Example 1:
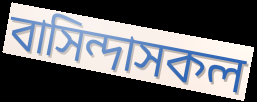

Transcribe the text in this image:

বাসিন্দাসকল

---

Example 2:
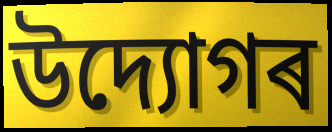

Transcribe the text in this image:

উদ্যোগৰ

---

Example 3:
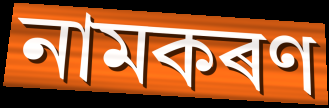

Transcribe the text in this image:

নামকৰণ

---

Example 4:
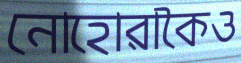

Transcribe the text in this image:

নোহোৱাকৈও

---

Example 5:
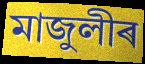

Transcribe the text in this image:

মাজুলীৰ